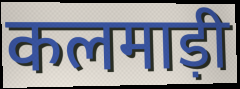
कलमाड़ी